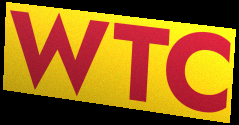
WTC